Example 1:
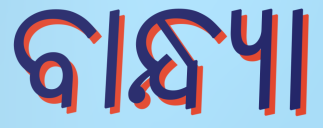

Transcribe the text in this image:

ବାନ୍ଧ୍ୟା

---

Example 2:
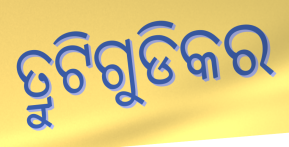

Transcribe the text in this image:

ତ୍ରୁଟିଗୁଡିକର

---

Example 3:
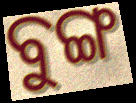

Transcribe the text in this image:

ବୁଙ୍ଗ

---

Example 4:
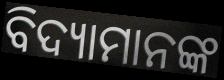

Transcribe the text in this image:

ବିଦ୍ୟାମାନଙ୍କ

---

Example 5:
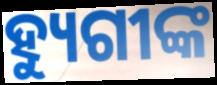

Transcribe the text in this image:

ହ୍ୟୁଗୀଙ୍କ